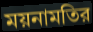
ময়নামতির